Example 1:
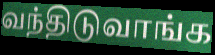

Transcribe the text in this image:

வந்திடுவாங்க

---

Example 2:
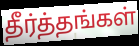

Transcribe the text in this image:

தீர்த்தங்கள்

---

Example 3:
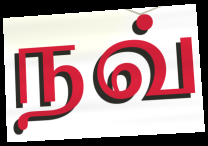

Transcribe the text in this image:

நவ்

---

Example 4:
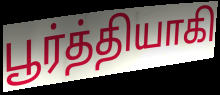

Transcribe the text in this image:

பூர்த்தியாகி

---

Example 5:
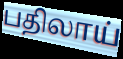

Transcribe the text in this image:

பதிலாய்